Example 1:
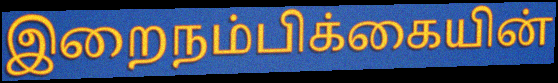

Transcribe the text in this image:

இறைநம்பிக்கையின்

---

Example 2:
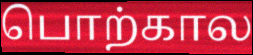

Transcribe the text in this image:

பொற்கால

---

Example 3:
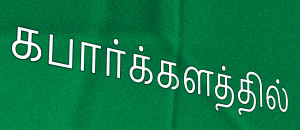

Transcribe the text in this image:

கபார்க்களத்தில்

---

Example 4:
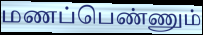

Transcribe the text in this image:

மணப்பெண்ணும்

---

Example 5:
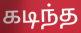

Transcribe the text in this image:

கடிந்த